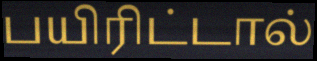
பயிரிட்டால்